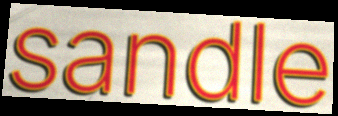
sandle